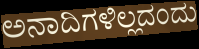
ಅನಾದಿಗಳಿಲ್ಲದಂದು